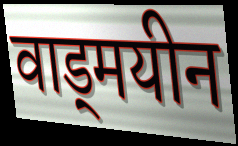
वाड्‌मयीन